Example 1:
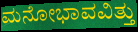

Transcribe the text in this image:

ಮನೋಭಾವವಿತ್ತು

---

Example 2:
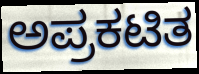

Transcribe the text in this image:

ಅಪ್ರಕಟಿತ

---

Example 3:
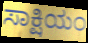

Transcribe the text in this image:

ಸಾಕ್ಷಿಯಂ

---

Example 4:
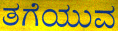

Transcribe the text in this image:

ತಗೆಯುವ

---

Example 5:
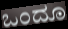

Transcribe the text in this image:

ಒಂದೂ